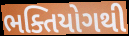
ભક્તિયોગથી